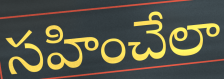
సహించేలా